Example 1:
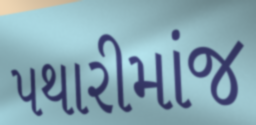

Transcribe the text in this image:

પથારીમાંજ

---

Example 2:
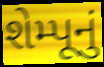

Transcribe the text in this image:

શેમ્પૂનું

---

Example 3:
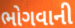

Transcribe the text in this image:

ભોગવાની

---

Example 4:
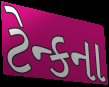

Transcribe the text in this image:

ટેન્કના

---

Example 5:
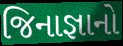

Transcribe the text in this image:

જિનાજ્ઞાનો